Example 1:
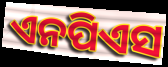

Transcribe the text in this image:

ଏନପିଏସ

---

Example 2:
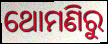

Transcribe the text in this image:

ଥୋମଣିରୁ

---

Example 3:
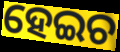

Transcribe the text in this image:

ହେଇଚ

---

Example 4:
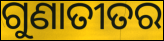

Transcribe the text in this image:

ଗୁଣାତୀତର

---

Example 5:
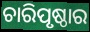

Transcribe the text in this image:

ଚାରିପୃଷ୍ଠାର